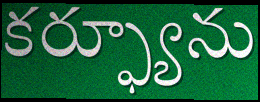
కర్ఫ్యూను